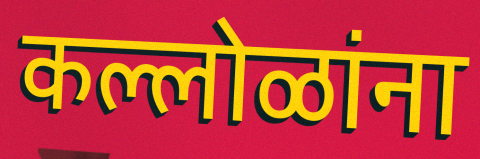
कल्लोळांना